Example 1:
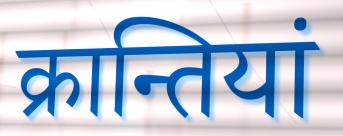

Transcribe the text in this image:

क्रान्तियां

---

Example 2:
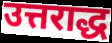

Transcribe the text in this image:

उत्तराद्ध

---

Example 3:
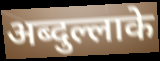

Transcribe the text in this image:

अब्दुल्लाके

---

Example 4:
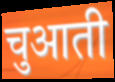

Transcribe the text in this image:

चुआती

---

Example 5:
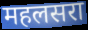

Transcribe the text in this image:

महलसरा